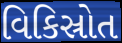
વિકિસ્રોત